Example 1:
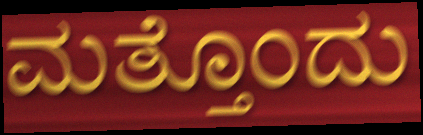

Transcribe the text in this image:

ಮತ್ತೊಂದು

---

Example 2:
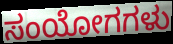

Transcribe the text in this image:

ಸಂಯೋಗಗಳು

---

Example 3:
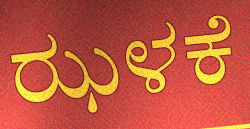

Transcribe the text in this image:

ಝಳಕೆ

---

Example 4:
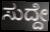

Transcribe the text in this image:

ಸುದ್ದೇ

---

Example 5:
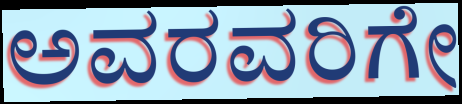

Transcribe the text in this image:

ಅವರವರಿಗೇ